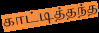
காட்டித்தந்த